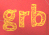
grb